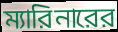
ম্যারিনারের